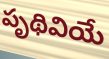
పృథివియే